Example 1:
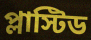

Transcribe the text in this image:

প্লাস্টিড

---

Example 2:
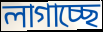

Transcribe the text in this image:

লাগাচ্ছে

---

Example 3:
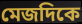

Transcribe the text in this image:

মেজদিকে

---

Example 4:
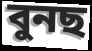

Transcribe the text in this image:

বুনছ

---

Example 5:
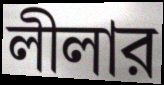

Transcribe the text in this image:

লীলার